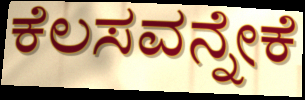
ಕೆಲಸವನ್ನೇಕೆ